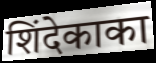
शिंदेकाका